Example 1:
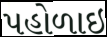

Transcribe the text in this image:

પહોળાઇ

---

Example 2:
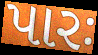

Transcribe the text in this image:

પારઃ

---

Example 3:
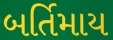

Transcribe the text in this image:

બર્તિમાય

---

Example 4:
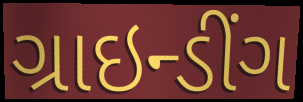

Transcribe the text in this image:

ગ્રાઇન્ડીંગ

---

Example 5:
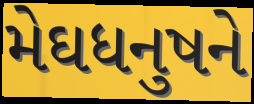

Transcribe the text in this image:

મેઘધનુષને